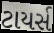
ટાયર્સ